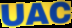
UAC